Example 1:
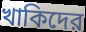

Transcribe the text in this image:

খাকিদের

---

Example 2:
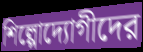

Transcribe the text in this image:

শিল্পোদ্যোগীদের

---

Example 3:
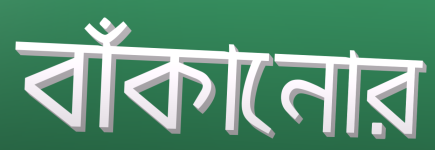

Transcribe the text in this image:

বাঁকানোর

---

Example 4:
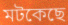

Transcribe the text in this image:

মটকেছে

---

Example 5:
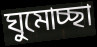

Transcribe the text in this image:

ঘুমোচ্ছা